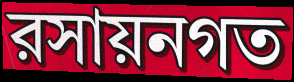
রসায়নগত